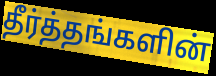
தீர்த்தங்களின்